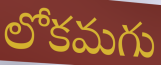
లోకమగు